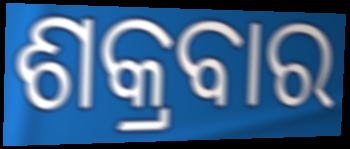
ଶକ୍ରବାର